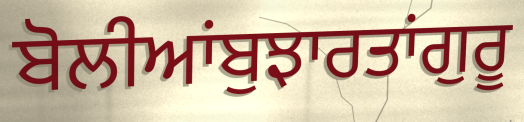
ਬੋਲੀਆਂਬੁਝਾਰਤਾਂਗੁਰੂ